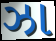
ઝા